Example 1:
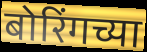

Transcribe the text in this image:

बोरिंगच्या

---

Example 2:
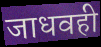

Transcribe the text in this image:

जाधवही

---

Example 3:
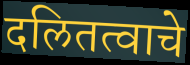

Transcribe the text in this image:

दलितत्वाचे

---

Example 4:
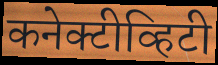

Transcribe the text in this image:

कनेक्टीव्हिटी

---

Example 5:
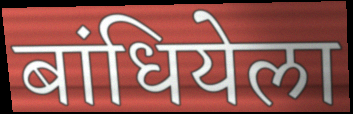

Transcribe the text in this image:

बांधियेला